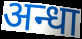
अन्धा